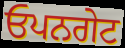
ਓਪਨਗੇਟ